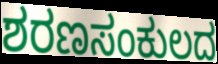
ಶರಣಸಂಕುಲದ